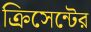
ক্রিসেন্টের